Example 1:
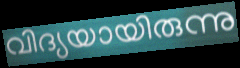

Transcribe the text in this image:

വിദ്യയായിരുന്നു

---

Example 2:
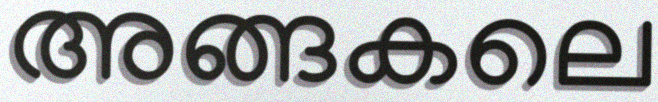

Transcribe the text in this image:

അങ്ങകലെ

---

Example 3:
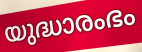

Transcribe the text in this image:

യുദ്ധാരംഭം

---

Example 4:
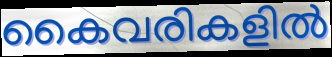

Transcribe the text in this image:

കൈവരികളിൽ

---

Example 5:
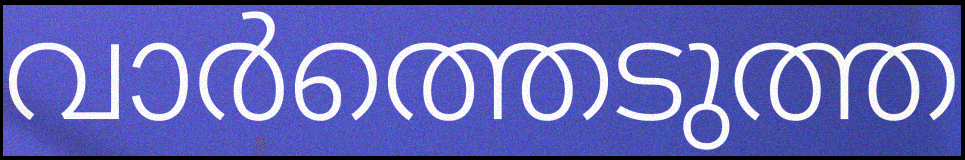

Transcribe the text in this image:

വാർത്തെടുത്ത